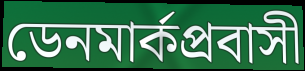
ডেনমার্কপ্রবাসী